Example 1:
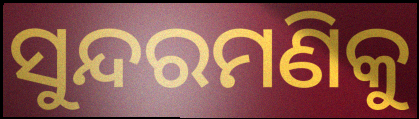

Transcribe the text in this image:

ସୁନ୍ଦରମଣିକୁ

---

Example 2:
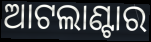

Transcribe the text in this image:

ଆଟଲାଣ୍ଟାର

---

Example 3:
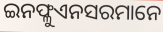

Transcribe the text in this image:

ଇନଫ୍ଳୁଏନସରମାନେ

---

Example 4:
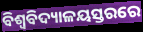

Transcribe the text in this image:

ବିଶ୍ୱବିଦ୍ୟାଳୟସ୍ତରରେ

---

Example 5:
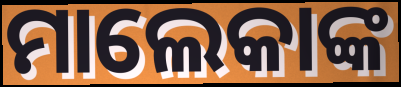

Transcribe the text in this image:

ମାଲେକାଙ୍କ